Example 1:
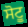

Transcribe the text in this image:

ਸੋਟੂ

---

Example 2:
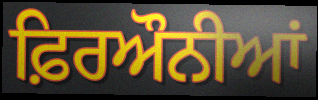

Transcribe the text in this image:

ਫ਼ਿਰਔਨੀਆਂ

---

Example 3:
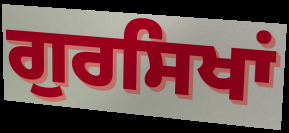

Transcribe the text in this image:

ਗੁਰਸਿਖਾਂ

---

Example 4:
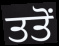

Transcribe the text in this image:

ਤਤੋਂ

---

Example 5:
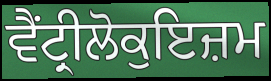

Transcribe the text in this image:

ਵੈਂਟ੍ਰੀਲੋਕੁਇਜ਼ਮ